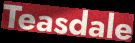
Teasdale